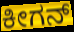
ಕೀಗನ್